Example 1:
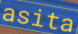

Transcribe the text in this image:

asita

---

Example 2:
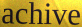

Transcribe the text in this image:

achive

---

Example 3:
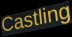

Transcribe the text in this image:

Castling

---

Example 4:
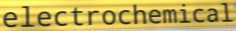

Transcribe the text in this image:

electrochemical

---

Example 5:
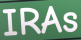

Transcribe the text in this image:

IRAs